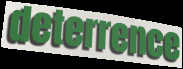
deterrence